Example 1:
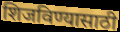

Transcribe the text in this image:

शिजविण्यासाठी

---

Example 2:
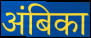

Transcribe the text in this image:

अंबिका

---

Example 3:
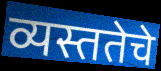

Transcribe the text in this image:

व्यस्ततेचे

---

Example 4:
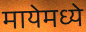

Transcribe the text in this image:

मायेमध्ये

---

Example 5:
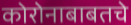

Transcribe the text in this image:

कोरोनाबाबतचे